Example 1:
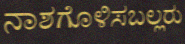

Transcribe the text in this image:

ನಾಶಗೊಳಿಸಬಲ್ಲರು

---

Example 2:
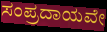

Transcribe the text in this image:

ಸಂಪ್ರದಾಯವೇ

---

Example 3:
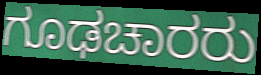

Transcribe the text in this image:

ಗೂಢಚಾರರು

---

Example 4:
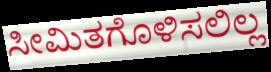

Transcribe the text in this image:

ಸೀಮಿತಗೊಳಿಸಲಿಲ್ಲ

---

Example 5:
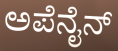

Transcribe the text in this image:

ಅಪೆನೈನ್